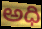
అధి